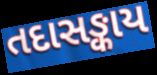
તદાસઙ્કાય